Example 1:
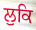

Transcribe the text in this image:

ਲੁਕਿ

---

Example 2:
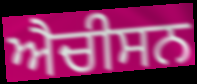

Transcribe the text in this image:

ਐਚੀਸਨ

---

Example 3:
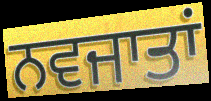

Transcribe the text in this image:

ਨਵਜਾਤਾਂ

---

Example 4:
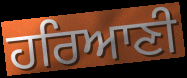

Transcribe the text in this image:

ਹਰਿਆਣੀ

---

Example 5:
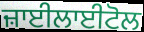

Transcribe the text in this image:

ਜ਼ਾਈਲਾਈਟੋਲ